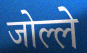
जोल्ले